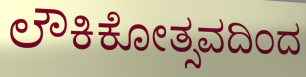
ಲೌಕಿಕೋತ್ಸವದಿಂದ